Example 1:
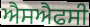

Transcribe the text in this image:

ਐਸਐਫਸੀ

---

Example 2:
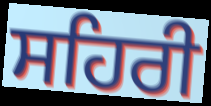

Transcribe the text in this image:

ਸਹਿਰੀ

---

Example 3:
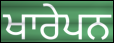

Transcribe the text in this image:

ਖਾਰੇਪਨ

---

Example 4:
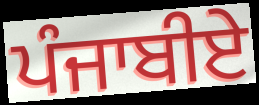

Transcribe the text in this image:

ਪੰਜਾਬੀਏ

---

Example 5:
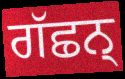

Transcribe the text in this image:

ਗੱਛਨ੍